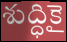
శుద్ధికై